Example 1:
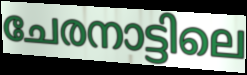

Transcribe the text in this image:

ചേരനാട്ടിലെ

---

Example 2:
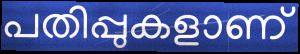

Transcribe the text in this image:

പതിപ്പുകളാണ്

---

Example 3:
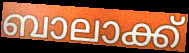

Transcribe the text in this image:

ബാലാക്ക്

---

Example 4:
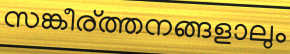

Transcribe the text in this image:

സങ്കീര്ത്തനങ്ങളാലും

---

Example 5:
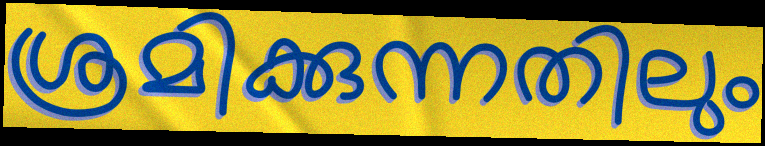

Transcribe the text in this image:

ശ്രമിക്കുന്നതിലും